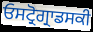
ਓਸਟ੍ਰੋਗ੍ਰਾਡਸਕੀ